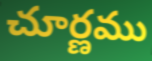
చూర్ణము